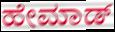
ಹೇಮಾಡ್